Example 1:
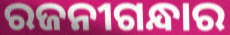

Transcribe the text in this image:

ରଜନୀଗନ୍ଧାର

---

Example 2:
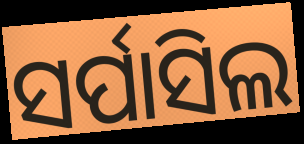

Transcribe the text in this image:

ସର୍ପାସିଲ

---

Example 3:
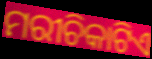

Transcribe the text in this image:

ମରୀଚିକାଟିଏ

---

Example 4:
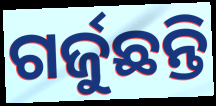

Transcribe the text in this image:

ଗର୍ଜୁଛନ୍ତି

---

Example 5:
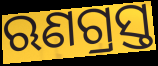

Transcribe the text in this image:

ଋଣଗ୍ରସ୍ତ